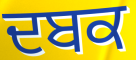
ਦਬਕ